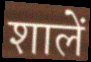
शालें